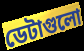
ডেটাগুলো